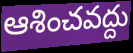
ఆశించవద్దు